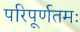
परिपूर्णतमः